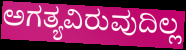
ಅಗತ್ಯವಿರುವುದಿಲ್ಲ